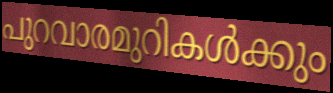
പുറവാരമുറികൾക്കും